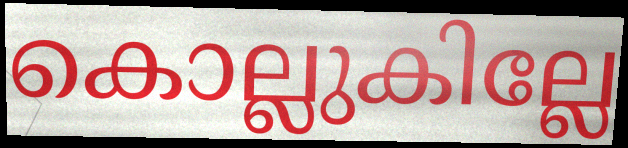
കൊല്ലുകില്ലേ